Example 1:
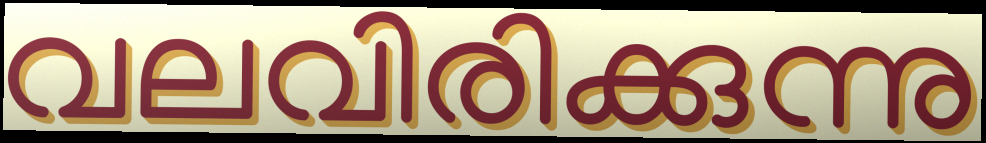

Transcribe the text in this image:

വലവിരിക്കുന്നു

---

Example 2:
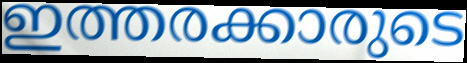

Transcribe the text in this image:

ഇത്തരക്കാരുടെ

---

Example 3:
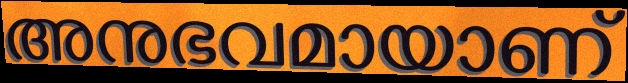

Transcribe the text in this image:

അനുഭവമായാണ്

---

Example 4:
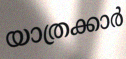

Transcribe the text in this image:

യാത്രക്കാർ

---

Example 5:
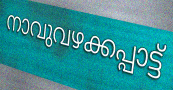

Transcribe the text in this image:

നാവുവഴക്കപ്പാട്ട്